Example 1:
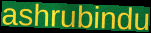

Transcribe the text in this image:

ashrubindu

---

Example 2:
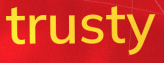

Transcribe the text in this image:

trusty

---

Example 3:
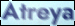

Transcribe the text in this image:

Atreya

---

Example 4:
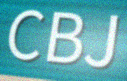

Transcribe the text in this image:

CBJ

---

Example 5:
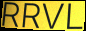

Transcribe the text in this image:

RRVL